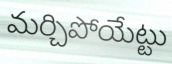
మర్చిపోయేట్టు